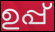
ഉപ്പ്